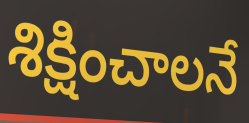
శిక్షించాలనే